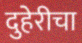
दुहेरीचा